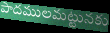
పాదములమట్టునకు